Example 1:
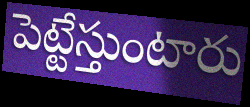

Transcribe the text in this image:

పెట్టేస్తుంటారు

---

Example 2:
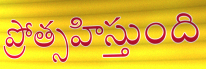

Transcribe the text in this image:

ప్రోత్సహిస్తుంది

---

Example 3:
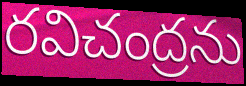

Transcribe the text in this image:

రవిచంద్రను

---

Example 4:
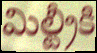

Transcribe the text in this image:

మిల్ట్రీకి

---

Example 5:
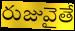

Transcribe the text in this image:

రుజువైతే